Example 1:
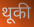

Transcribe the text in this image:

थूकी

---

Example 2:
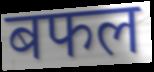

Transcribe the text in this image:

बफल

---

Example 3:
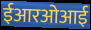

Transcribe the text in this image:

ईआरओआई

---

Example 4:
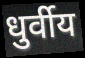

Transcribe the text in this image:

धुर्वीय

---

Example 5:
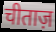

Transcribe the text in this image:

चीताज़